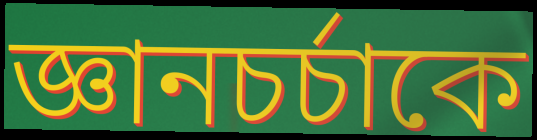
জ্ঞানচর্চাকে